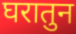
घरातुन